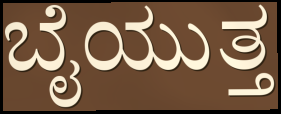
ಬೈಯುತ್ತ